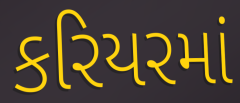
કરિયરમાં